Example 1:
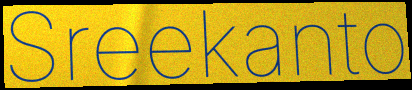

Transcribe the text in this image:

Sreekanto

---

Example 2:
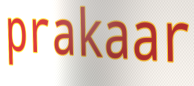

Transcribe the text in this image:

prakaar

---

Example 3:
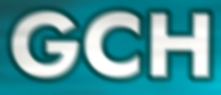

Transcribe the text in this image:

GCH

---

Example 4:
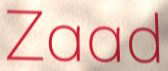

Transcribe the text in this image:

Zaad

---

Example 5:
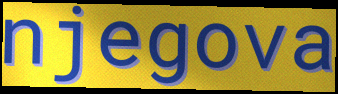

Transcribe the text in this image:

njegova